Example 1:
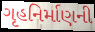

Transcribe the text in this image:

ગૃહનિર્માણની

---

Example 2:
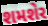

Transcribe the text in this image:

શમશેર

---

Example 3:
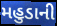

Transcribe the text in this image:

મહુડાની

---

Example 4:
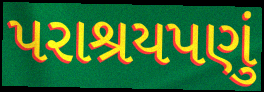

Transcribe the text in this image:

પરાશ્રયપણું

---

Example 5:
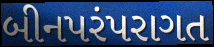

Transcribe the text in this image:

બીનપરંપરાગત